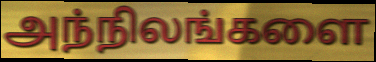
அந்நிலங்களை